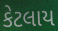
કેટલાય